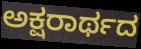
ಅಕ್ಷರಾರ್ಥದ